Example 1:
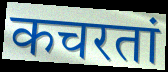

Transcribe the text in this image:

कचरतां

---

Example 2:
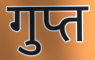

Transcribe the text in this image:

गुप्त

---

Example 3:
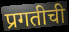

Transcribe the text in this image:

प्रगतीची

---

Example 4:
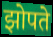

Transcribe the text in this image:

झोपते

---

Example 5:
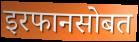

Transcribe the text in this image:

इरफानसोबत